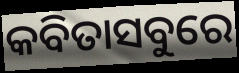
କବିତାସବୁରେ